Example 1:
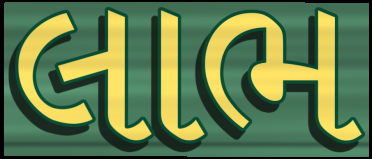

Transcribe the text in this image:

લાભ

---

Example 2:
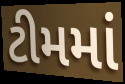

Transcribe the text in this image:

ટીમમાં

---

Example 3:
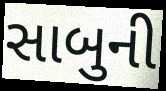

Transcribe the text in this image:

સાબુની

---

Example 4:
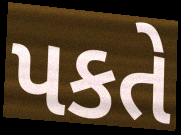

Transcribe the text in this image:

પકતે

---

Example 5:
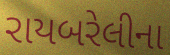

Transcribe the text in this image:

રાયબરેલીના